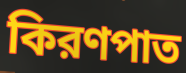
কিরণপাত